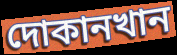
দোকানখান